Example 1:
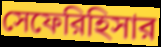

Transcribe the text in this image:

সেফেরিহিসার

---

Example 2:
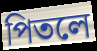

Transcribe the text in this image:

পিতলে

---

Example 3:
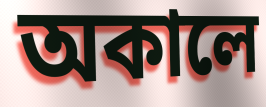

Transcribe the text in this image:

অকালে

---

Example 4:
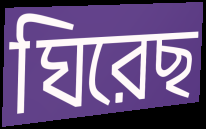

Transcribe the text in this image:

ঘিরেছ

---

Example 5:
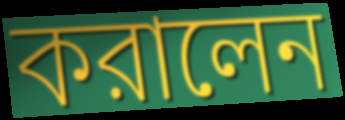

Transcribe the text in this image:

করালেন